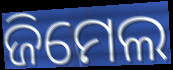
ଜିମେଲ